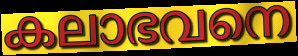
കലാഭവനെ